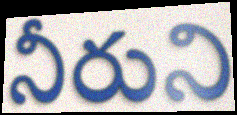
నీరుని